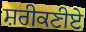
ਸ਼ਰੀਕਣੀਏ